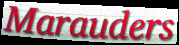
Marauders